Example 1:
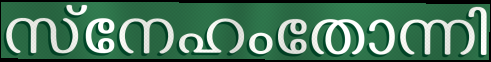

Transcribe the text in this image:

സ്‌നേഹംതോന്നി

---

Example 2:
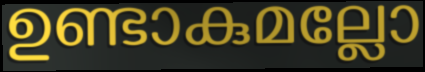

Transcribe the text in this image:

ഉണ്ടാകുമല്ലോ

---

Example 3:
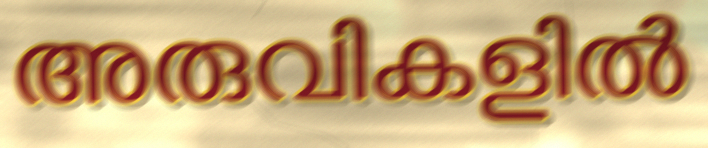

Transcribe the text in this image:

അരുവികളിൽ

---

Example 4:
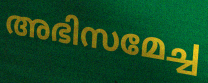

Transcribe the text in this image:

അഭിസമേച്ച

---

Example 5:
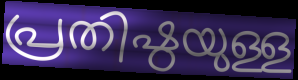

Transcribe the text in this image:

പ്രതിഷ്ഠയുള്ള